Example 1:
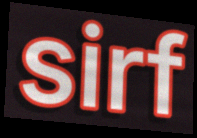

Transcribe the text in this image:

sirf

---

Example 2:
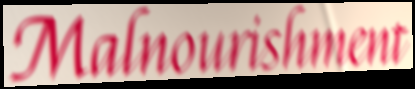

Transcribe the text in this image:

Malnourishment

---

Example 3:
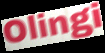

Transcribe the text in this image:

Olingi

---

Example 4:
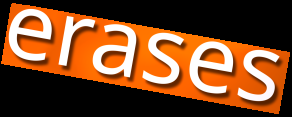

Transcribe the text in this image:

erases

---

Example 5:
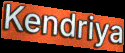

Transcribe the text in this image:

Kendriya